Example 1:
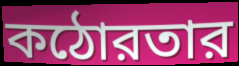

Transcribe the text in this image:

কঠোরতার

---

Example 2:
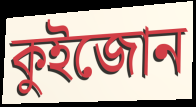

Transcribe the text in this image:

কুইজোন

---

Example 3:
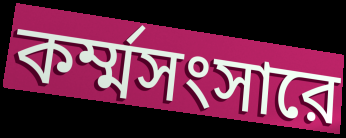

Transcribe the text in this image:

কর্ম্মসংসারে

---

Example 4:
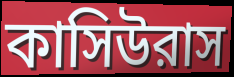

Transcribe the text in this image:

কাসিউরাস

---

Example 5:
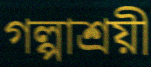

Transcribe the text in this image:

গল্পাশ্রয়ী